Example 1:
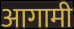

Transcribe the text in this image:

आगामी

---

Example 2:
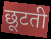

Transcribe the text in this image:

छूटती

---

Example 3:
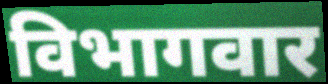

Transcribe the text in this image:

विभागवार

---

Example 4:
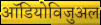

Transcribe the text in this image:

ऑडियोविजुअल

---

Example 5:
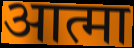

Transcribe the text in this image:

आत्मा